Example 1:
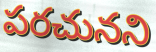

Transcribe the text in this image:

పరచునని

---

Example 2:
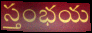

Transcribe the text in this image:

స్తంభయ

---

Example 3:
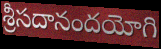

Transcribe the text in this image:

శ్రీసదానందయోగి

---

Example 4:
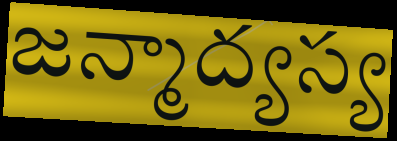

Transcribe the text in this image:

జన్మాద్యస్య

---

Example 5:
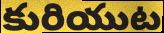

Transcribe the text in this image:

కురియుట